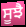
ਸੂਝੈ